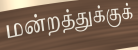
மன்றத்துக்குக்